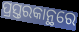
ପ୍ରସ୍ତରକାନ୍ଥରେ